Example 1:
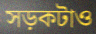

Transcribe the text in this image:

সড়কটাও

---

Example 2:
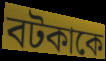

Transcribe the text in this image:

বটকাকে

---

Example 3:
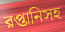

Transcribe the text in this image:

রপ্তানিসহ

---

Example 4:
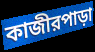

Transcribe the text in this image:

কাজীরপাড়া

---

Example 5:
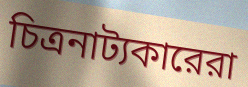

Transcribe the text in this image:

চিত্রনাট্যকারেরা